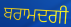
ਬਰਾਮਦਗੀ